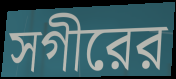
সগীরের